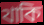
থাকি